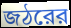
জঠরের